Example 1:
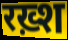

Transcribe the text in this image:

रख़्श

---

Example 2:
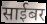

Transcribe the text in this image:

साईबर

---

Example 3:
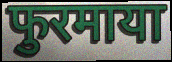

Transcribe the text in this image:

फुरमाया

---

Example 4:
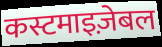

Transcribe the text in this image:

कस्टमाइज़ेबल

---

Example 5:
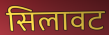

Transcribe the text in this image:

सिलावट